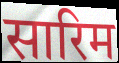
सारिम